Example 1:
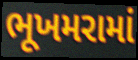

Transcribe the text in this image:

ભૂખમરામાં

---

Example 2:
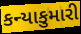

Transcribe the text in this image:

કન્યાકુમારી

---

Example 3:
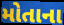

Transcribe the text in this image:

મોતાના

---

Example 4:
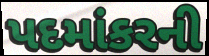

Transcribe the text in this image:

પદમાંકરની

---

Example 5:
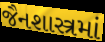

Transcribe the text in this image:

જૈનશાસ્ત્રમાં